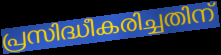
പ്രസിദ്ധീകരിച്ചതിന്